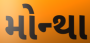
મોન્થા